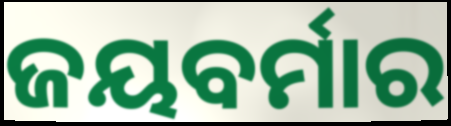
ଜୟବର୍ମାର